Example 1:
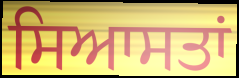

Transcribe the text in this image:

ਸਿਆਸਤਾਂ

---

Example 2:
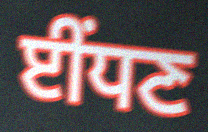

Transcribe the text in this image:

ਈਂਧਣ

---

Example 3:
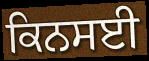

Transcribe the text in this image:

ਕਿਨਸਈ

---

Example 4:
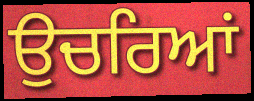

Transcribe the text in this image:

ਉਚਰਿਆਂ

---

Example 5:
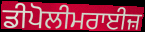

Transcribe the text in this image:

ਡੀਪੋਲੀਮਰਾਈਜ਼